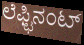
ಲೆಫ್ಟಿನಂಟ್